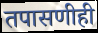
तपासणीही